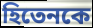
হিতেনকে